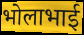
भोलाभाई